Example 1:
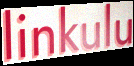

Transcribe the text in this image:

linkulu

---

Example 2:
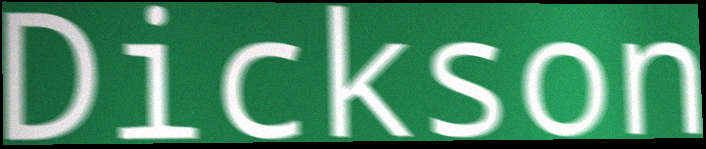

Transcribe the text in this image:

Dickson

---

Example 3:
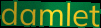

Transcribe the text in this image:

damlet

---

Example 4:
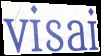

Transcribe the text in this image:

visai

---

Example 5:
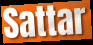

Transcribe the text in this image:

Sattar